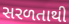
સરળતાથી